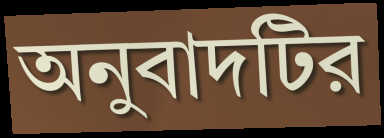
অনুবাদটির